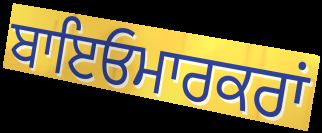
ਬਾਇਓਮਾਰਕਰਾਂ